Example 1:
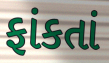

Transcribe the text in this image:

ફાંકતાં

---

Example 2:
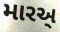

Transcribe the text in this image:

મારઅ્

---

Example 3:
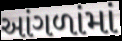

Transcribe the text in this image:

આંગળાંમાં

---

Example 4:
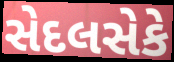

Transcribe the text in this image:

સેદલસેકે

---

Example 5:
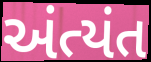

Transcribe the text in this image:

અંત્યંત